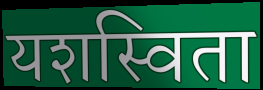
यशस्विता